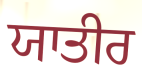
ਯਾਤੀਰ